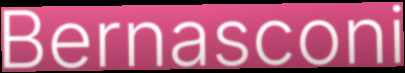
Bernasconi